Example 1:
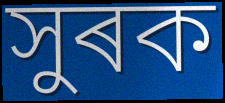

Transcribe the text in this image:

সুৰক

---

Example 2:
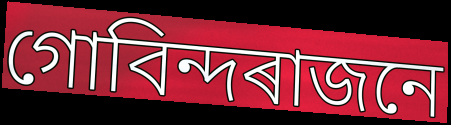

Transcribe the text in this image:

গোবিন্দৰাজনে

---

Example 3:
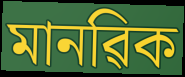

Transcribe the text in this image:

মানৱিক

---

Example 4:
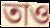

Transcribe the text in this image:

তাও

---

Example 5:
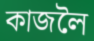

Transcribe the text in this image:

কাজলৈ